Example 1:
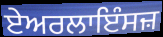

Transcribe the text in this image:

ਏਅਰਲਾਇੰਸਜ਼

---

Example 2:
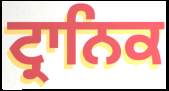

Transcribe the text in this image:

ਟ੍ਰਾਨਿਕ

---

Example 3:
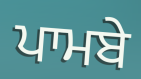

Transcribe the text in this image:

ਪਾਮਬੇ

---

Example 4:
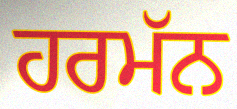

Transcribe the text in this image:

ਹਰਮੱਨ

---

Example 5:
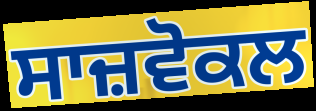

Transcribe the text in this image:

ਸਾਜ਼ਵੋਕਲ